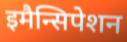
इमैन्सिपेशन